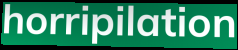
horripilation